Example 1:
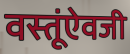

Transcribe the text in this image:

वस्तूंऐवजी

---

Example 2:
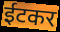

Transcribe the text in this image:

ईटकर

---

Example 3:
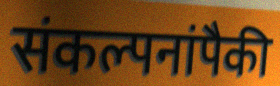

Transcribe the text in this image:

संकल्पनांपैकी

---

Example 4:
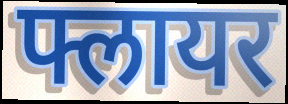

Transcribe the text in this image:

फ्लायर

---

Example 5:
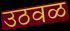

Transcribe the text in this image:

उठवळ